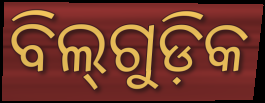
ବିଲ୍‌ଗୁଡ଼ିକ